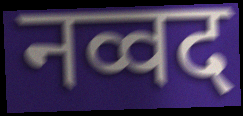
नव्वद